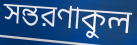
সন্তরণাকুল